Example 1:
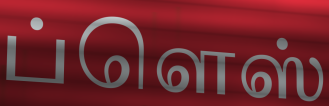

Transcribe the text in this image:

ப்ளெஸ்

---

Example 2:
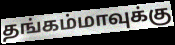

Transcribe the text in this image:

தங்கம்மாவுக்கு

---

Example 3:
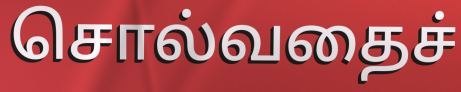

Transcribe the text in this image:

சொல்வதைச்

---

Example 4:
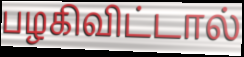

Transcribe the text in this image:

பழகிவிட்டால்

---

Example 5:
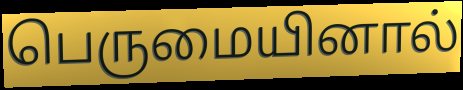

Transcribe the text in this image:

பெருமையினால்